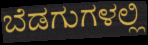
ಬೆಡಗುಗಳಲ್ಲಿ